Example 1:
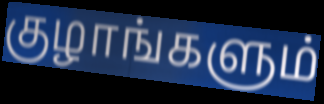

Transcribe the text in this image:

குழாங்களும்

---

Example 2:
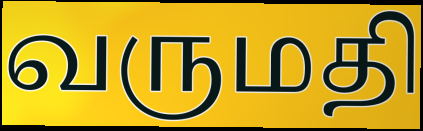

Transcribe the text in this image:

வருமதி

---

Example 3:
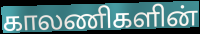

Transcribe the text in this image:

காலணிகளின்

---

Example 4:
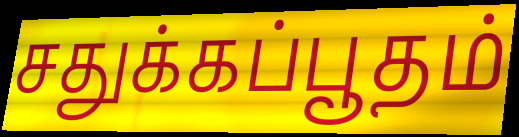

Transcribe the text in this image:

சதுக்கப்பூதம்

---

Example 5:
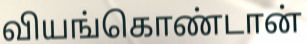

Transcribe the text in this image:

வியங்கொண்டான்